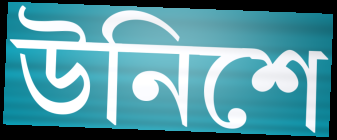
উনিশে